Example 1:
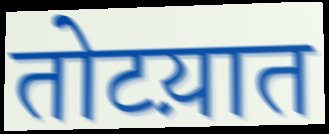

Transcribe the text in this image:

तोटय़ात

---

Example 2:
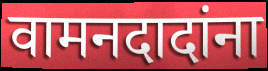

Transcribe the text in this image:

वामनदादांना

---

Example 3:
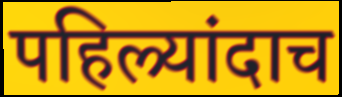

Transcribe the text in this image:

पहिल्यांदाच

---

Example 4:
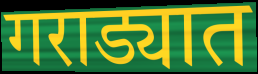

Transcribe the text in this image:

गराड्यात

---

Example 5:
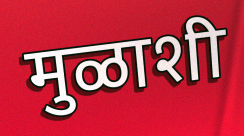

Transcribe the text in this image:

मुळाशी